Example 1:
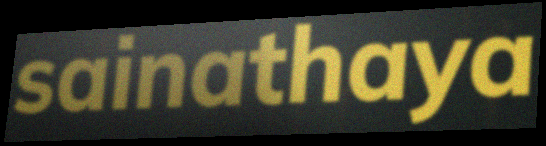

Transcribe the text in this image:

sainathaya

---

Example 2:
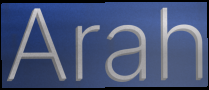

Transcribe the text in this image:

Arah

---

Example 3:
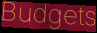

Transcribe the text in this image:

Budgets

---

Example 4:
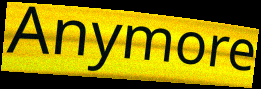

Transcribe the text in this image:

Anymore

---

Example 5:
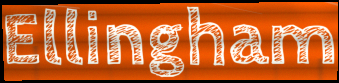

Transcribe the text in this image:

Ellingham